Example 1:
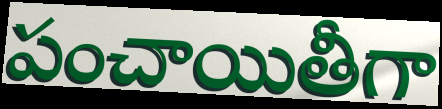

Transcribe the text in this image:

పంచాయితీగా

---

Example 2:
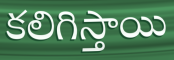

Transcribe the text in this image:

కలిగిస్తాయి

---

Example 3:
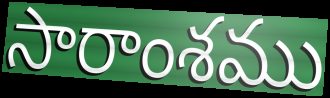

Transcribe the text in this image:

సారాంశము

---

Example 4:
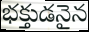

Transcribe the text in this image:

భక్తుడనైన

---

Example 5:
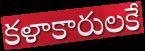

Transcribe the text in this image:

కళాకారులకే